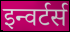
इन्वर्टर्स